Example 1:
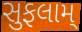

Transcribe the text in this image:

સુફલામ્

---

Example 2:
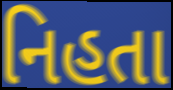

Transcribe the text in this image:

નિહતા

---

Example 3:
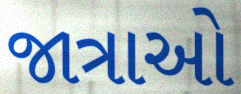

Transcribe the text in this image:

જાત્રાઓ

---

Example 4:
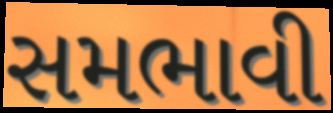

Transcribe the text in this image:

સમભાવી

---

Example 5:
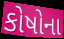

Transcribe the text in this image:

કોષોના